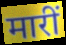
मारीं